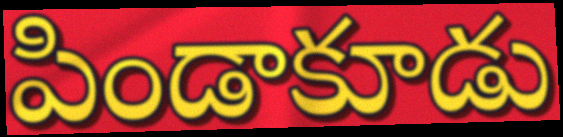
పిండాకూడు